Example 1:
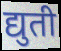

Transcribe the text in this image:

द्युती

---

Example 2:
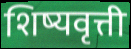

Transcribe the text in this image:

शिष्यवृत्ती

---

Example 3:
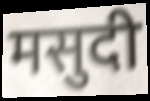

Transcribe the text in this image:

मसुदी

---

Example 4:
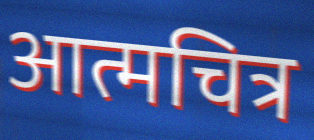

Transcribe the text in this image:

आत्मचित्र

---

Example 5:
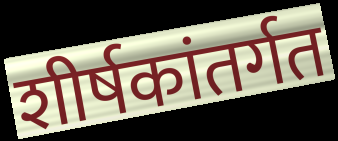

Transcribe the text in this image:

शीर्षकांतर्गत